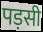
पड़सी